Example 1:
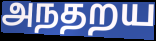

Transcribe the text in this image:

அநதறய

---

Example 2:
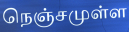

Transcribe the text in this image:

நெஞ்சமுள்ள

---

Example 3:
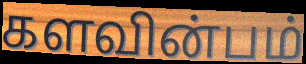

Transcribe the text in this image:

களவின்பம்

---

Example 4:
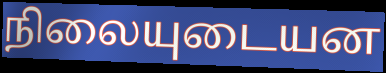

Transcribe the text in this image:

நிலையுடையன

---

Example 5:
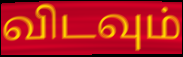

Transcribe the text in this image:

விடவும்